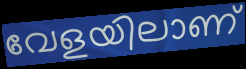
വേളയിലാണ്